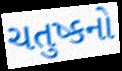
ચતુષ્કનો